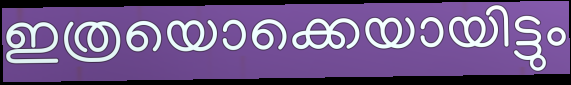
ഇത്രയൊക്കെയായിട്ടും